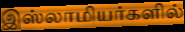
இஸ்லாமியர்களில்